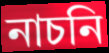
নাচনি